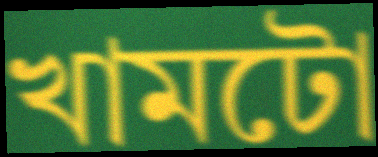
খামটো